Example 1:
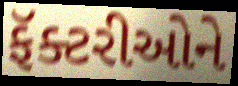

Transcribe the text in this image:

ફૅક્ટરીઓને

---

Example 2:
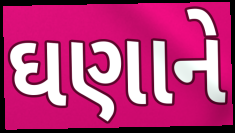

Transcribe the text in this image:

ઘણાને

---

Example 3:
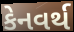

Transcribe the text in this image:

કેનવર્થ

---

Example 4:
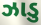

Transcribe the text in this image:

ઝાડુ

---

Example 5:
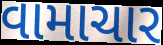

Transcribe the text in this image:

વામાચાર